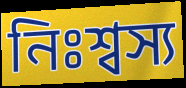
নিঃশ্বস্য